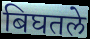
बिघतले